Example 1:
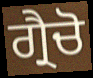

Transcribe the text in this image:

ਗ੍ਰੈਚੋ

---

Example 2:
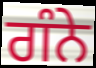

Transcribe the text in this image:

ਗੰਨੇ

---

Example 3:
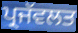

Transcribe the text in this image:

ਪ੍ਰਜੱਵਲਤ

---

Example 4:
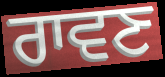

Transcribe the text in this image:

ਰਾਵਣ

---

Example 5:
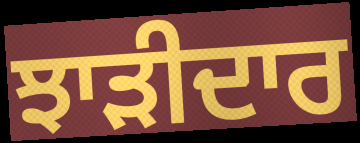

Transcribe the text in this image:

ਝਾੜੀਦਾਰ